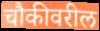
चौकीवरील